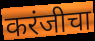
करंजीचा